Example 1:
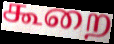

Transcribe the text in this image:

கூறை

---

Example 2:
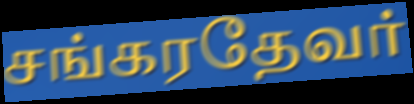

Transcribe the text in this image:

சங்கரதேவர்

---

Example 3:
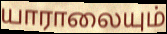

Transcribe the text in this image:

யாராலையும்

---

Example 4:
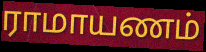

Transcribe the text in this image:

ராமாயணம்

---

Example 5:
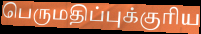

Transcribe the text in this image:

பெருமதிப்புக்குரிய